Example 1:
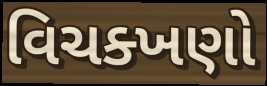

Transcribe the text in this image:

વિચક્ખણો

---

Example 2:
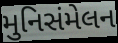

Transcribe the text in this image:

મુનિસંમેલન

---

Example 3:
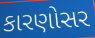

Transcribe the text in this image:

કારણોસર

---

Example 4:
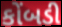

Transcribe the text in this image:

કોંબડી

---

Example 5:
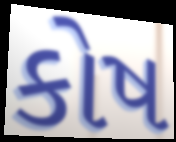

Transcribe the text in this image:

કોષ